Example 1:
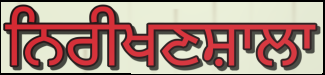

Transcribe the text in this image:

ਨਿਰੀਖਣਸ਼ਾਲਾ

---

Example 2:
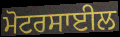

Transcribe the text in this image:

ਮੋਟਰਸਾਈਲ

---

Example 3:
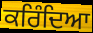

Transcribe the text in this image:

ਕਰਿੰਦਿਆ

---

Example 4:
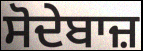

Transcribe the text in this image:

ਸੋਦੇਬਾਜ਼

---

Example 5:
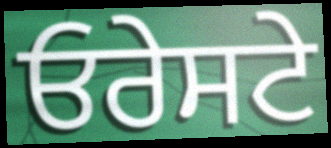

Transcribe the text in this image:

ਓਰੇਸਟੇ